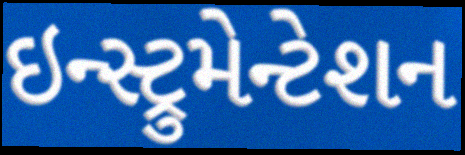
ઇન્સ્ટ્રુમેન્ટેશન